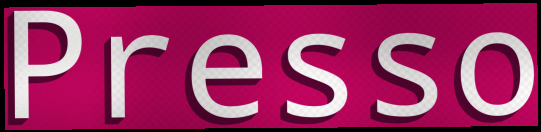
Presso